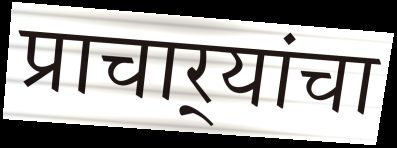
प्राचार्यांचा